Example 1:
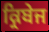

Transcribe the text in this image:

ਕ੍ਰਿਬੇਜ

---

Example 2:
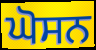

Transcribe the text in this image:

ਘੋਸਨ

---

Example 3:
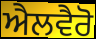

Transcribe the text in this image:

ਐਲਵੈਰੋ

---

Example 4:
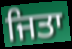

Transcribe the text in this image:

ਜਿਤਾ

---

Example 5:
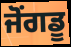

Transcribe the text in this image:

ਜੋਂਗਡੂ